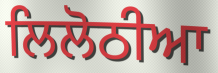
ਲਿਲੋਠੀਆ